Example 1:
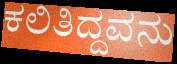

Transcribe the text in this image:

ಕಲಿತಿದ್ದವನು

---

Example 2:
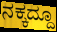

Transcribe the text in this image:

ನಕ್ಕದ್ದೂ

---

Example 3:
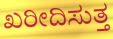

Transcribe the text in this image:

ಖರೀದಿಸುತ್ತ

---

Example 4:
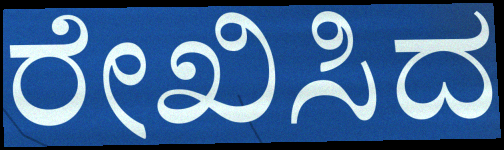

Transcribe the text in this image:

ರೇಖಿಸಿದ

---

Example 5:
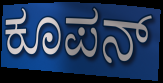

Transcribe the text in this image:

ಕೂಪನ್